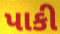
પાકી